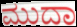
ಮುದಾ